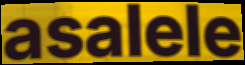
asalele